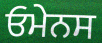
ਓਮੇਨਸ